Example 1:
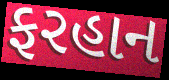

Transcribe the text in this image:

ફરહાન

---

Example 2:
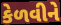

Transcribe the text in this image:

કેળવીને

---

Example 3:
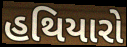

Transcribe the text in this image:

હથિયારો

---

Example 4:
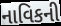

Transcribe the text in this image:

નાવિકની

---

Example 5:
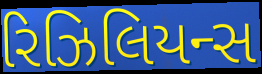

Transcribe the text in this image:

રિઝિલિયન્સ